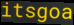
itsgoa